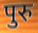
पुरु